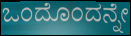
ಒಂದೊಂದನ್ನೇ